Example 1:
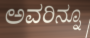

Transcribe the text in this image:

ಅವರಿನ್ನೂ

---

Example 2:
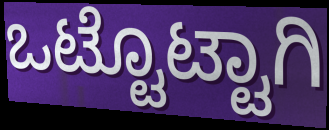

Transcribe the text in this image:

ಒಟ್ಟೊಟ್ಟಾಗಿ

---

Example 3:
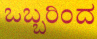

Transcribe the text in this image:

ಒಬ್ಬರಿಂದ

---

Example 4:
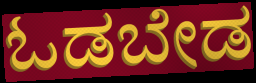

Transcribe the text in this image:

ಓಡಬೇಡ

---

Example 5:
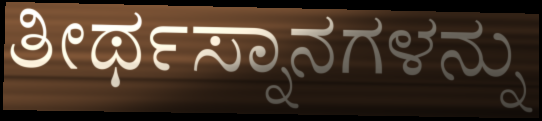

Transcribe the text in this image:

ತೀರ್ಥಸ್ನಾನಗಳನ್ನು